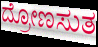
ದ್ರೋಣಸುತ